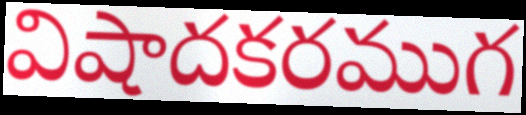
విషాదకరముగ